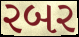
રબર